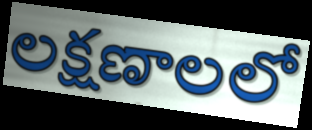
లక్షణాలలో